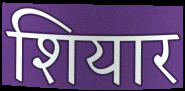
शियार